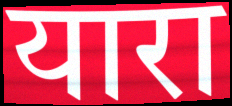
यारा